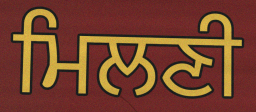
ਮਿਲਣੀ